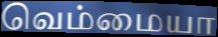
வெம்மையா